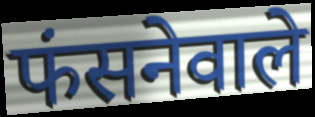
फंसनेवाले